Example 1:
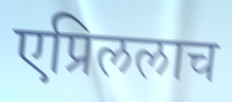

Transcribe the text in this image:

एप्रिललाच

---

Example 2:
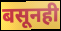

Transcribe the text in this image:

बसूनही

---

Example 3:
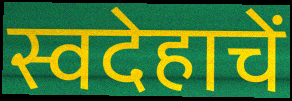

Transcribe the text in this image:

स्वदेहाचें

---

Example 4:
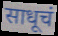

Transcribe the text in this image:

साधूचं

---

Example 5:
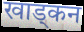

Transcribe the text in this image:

खाड्कन